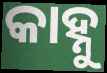
କାହ୍ନୁ